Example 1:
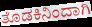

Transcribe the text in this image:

ತೊಡಕಿನಿಂದಾಗಿ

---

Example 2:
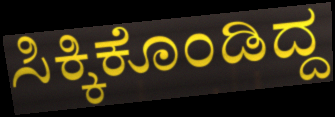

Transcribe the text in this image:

ಸಿಕ್ಕಿಕೊಂಡಿದ್ದ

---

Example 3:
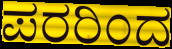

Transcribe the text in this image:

ಪರರಿಂದ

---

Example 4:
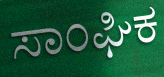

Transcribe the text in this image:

ಸಾಂಘಿಕ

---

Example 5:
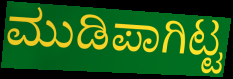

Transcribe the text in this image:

ಮುಡಿಪಾಗಿಟ್ಟ